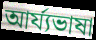
আর্য্যভাষা